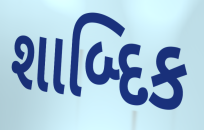
શાબ્દિક